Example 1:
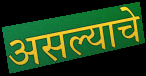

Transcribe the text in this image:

असल्‍याचे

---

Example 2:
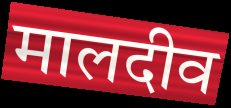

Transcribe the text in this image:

मालदीव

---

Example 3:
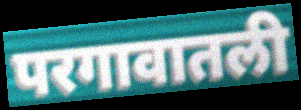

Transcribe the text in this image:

परगावातली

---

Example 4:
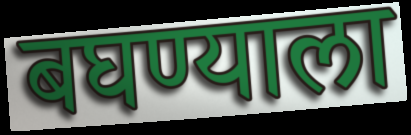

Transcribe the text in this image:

बघण्याला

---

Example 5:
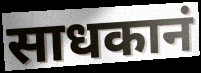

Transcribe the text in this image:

साधकानं